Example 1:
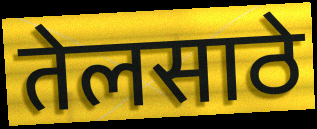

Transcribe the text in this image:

तेलसाठे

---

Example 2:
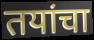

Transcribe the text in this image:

तयांचा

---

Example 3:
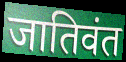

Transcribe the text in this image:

जातिवंत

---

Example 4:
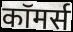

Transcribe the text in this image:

कॉमर्स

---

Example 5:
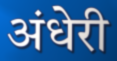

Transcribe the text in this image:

अंधेरी